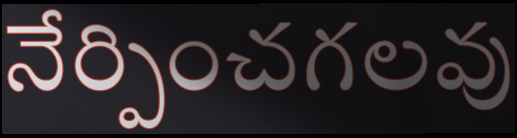
నేర్పించగలవు